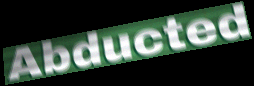
Abducted